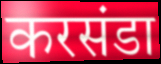
करसंडा